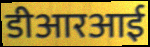
डीआरआई